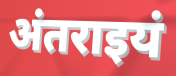
अंतराइयं